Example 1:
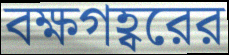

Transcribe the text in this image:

বক্ষগহ্বরের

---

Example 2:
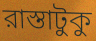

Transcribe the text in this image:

রাস্তাটুকু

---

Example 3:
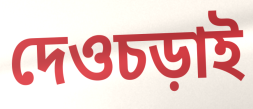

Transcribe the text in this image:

দেওচড়াই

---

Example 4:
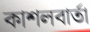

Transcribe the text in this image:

কাশলবার্তা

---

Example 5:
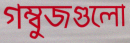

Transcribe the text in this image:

গম্বুজগুলো